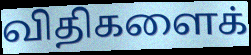
விதிகளைக்